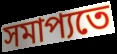
সমাপ্যতে